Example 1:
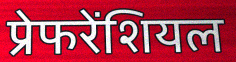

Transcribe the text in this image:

प्रेफरेंशियल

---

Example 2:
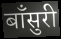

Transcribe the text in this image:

बाँसुरी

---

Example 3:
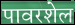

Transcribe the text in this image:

पावरशेल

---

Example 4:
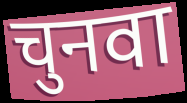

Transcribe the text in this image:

चुनवा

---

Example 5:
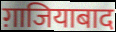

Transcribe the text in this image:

ग़ाजियाबाद